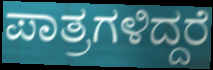
ಪಾತ್ರಗಳಿದ್ದರೆ